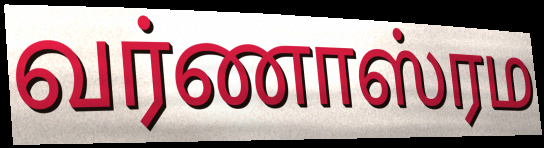
வர்ணாஸ்ரம